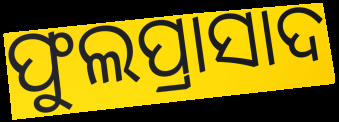
ଫୁଲପ୍ରାସାଦ